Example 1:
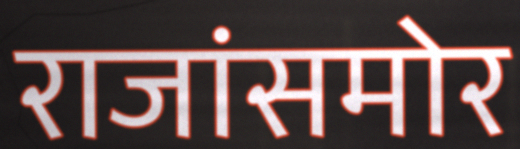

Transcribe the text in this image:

राजांसमोर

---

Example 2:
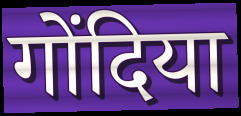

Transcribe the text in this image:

गोंदिया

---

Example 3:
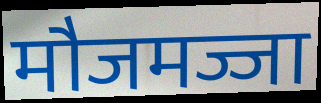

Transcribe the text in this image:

मौजमज्जा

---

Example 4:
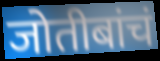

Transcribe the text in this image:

जोतीबांचं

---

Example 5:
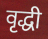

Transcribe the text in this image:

वृद्धी